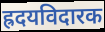
ह्रदयविदारक